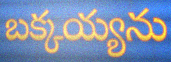
బక్కయ్యను